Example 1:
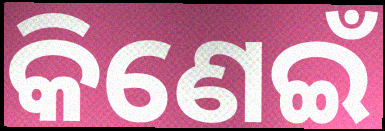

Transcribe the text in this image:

କିଣେଇଁ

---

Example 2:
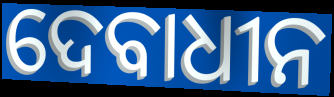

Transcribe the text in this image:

ଦେବାଧୀନ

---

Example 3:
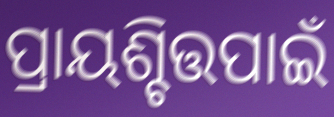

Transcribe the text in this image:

ପ୍ରାୟଶ୍ଚିତ୍ତପାଇଁ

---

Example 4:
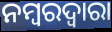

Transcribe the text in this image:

ନମ୍ବରଦ୍ୱାରା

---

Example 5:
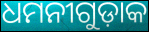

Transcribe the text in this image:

ଧମନୀଗୁଡ଼ାକ